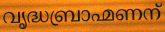
വൃദ്ധബ്രാഹ്മണന്